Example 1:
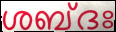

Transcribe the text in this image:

ശബ്ദഃ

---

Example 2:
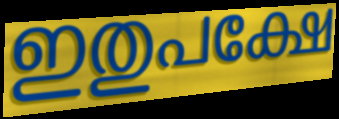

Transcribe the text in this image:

ഇതുപക്ഷേ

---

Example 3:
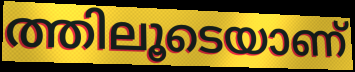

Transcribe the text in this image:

ത്തിലൂടെയാണ്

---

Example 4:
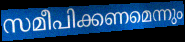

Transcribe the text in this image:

സമീപിക്കണമെന്നും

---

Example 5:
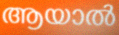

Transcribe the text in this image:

ആയാൽ